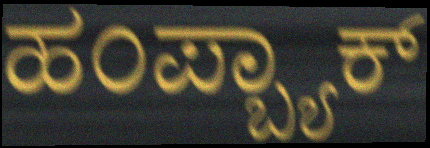
ಹಂಪ್ಬ್ಯಾಕ್